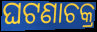
ଘଟଣାଚକ୍ର